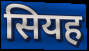
सियह